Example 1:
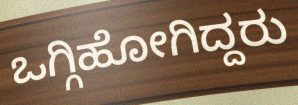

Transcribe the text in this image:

ಒಗ್ಗಿಹೋಗಿದ್ದರು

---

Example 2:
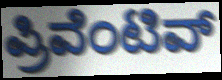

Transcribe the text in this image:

ಪ್ರಿವೆಂಟಿವ್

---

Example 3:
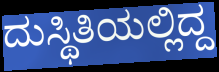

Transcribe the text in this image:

ದುಸ್ಥಿತಿಯಲ್ಲಿದ್ದ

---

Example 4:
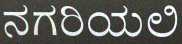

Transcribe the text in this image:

ನಗರಿಯಲಿ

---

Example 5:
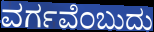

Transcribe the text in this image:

ವರ್ಗವೆಂಬುದು